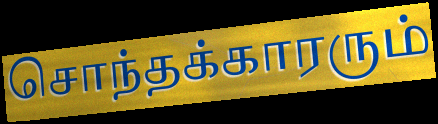
சொந்தக்காரரும்